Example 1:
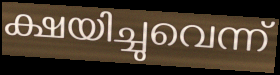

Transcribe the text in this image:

ക്ഷയിച്ചുവെന്ന്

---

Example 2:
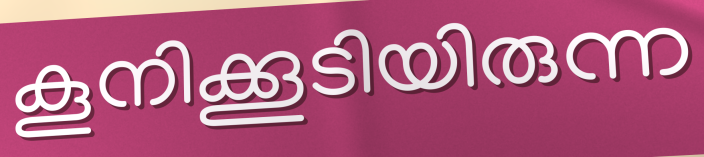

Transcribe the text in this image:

കൂനിക്കൂടിയിരുന്ന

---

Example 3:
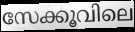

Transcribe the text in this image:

സേക്കൂവിലെ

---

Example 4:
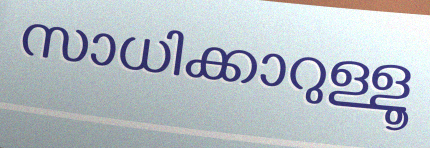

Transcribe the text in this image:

സാധിക്കാറുള്ളൂ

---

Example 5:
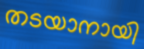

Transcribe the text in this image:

തടയാനായി